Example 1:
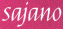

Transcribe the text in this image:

sajano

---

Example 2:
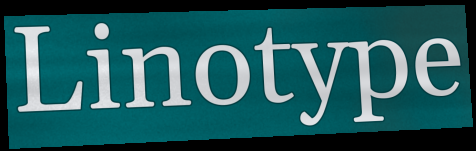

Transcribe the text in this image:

Linotype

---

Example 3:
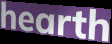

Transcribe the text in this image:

hearth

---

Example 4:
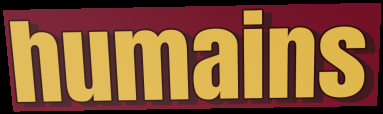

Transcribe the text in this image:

humains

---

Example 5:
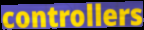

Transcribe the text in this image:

controllers